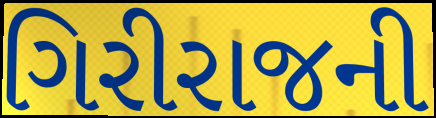
ગિરીરાજની